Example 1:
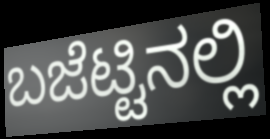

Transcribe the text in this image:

ಬಜೆಟ್ಟಿನಲ್ಲಿ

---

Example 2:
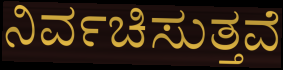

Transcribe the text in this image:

ನಿರ್ವಚಿಸುತ್ತವೆ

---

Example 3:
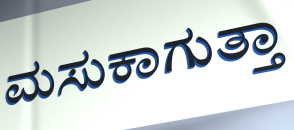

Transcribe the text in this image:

ಮಸುಕಾಗುತ್ತಾ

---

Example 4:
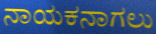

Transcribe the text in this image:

ನಾಯಕನಾಗಲು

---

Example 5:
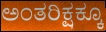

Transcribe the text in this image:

ಅಂತರಿಕ್ಷಕ್ಕೂ